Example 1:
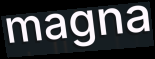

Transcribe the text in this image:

magna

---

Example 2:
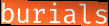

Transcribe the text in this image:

burials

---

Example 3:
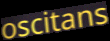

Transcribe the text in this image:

oscitans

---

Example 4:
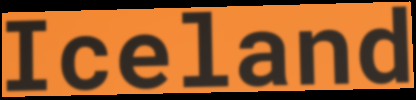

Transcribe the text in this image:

Iceland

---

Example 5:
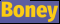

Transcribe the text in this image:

Boney